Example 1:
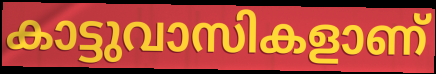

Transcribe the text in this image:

കാട്ടുവാസികളാണ്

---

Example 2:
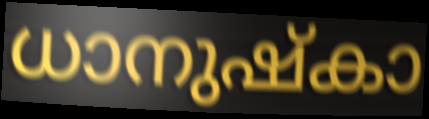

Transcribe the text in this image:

ധാനുഷ്കാ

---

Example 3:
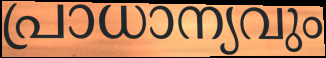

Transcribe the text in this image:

പ്രാധാന്യവും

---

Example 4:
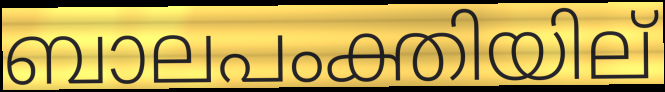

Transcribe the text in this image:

ബാലപംക്തിയില്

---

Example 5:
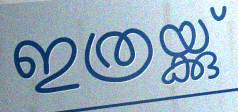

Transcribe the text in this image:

ഇത്രയ്ക്കു്